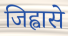
जिह्वासे